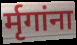
र्मृगांना